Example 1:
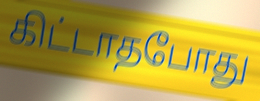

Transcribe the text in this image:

கிட்டாதபோது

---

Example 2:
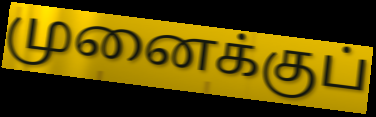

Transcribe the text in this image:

முனைக்குப்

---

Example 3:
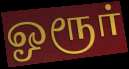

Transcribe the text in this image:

ஓரூர்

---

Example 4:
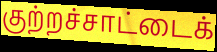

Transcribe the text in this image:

குற்றச்சாட்டைக்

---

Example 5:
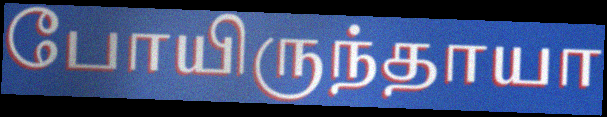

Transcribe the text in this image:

போயிருந்தாயா